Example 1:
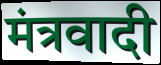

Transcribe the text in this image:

मंत्रवादी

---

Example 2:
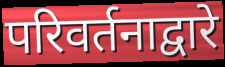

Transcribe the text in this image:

परिवर्तनाद्वारे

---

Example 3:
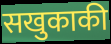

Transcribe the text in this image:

सखुकाकी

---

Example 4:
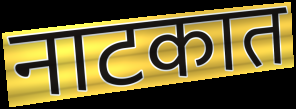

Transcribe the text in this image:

नाटकात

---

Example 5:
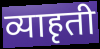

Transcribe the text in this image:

व्याहृती